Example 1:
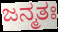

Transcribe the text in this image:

ಜನ್ಮತಃ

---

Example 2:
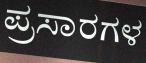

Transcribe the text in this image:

ಪ್ರಸಾರಗಳ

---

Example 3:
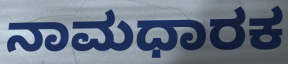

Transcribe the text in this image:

ನಾಮಧಾರಕ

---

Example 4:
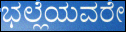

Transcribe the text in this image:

ಭಲ್ಲೆಯವರೇ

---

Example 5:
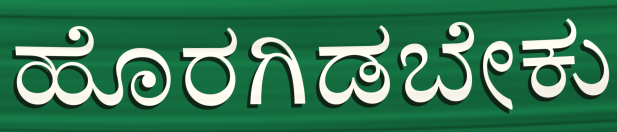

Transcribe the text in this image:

ಹೊರಗಿಡಬೇಕು